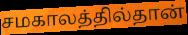
சமகாலத்தில்தான்